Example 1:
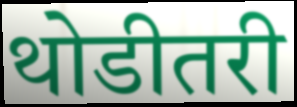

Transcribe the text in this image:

थोडीतरी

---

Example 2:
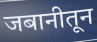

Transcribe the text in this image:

जबानीतून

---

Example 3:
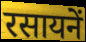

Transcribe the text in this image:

रसायनें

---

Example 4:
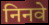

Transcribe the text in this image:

निनवे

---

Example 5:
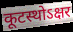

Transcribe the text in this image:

कूटस्थोऽक्षर